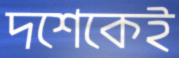
দশেকেই